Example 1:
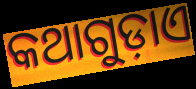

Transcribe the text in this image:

କଥାଗୁଡ଼ାଏ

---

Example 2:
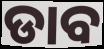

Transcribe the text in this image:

ଡାବ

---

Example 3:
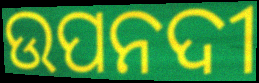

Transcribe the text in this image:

ଉପନଦୀ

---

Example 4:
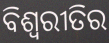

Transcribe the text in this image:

ବିଶ୍ଵରୀତିର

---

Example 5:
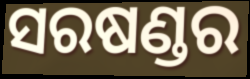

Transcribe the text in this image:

ସରଷଣ୍ଡର